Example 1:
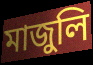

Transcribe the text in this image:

মাজুলি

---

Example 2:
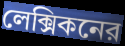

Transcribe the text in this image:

লেক্সিকনের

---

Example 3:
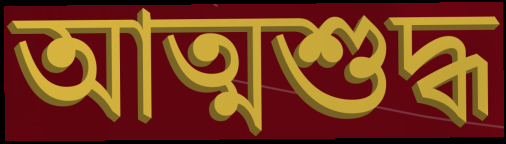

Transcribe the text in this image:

আত্মশুদ্ধ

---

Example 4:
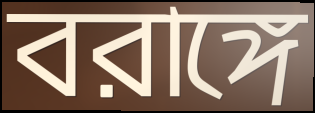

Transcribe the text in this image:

বরাঙ্গে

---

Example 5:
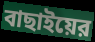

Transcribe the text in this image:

বাছাইয়ের